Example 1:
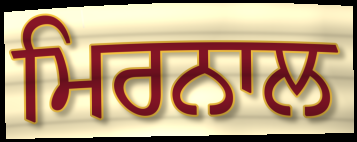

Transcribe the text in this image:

ਮਿਰਨਾਲ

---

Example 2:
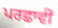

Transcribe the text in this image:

ਪਰਛਾਵੀਂ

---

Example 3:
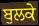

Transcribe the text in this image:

ਬੁਲਕੇ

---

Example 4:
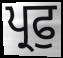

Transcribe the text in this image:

ਪ੍ਰਫੁ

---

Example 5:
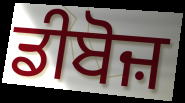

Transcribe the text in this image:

ਡੀਬੋਜ਼